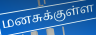
மனசுக்குள்ள